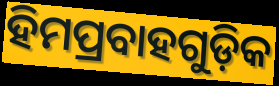
ହିମପ୍ରବାହଗୁଡ଼ିକ